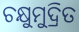
ଚକ୍ଷୁମୁଦ୍ରିତ